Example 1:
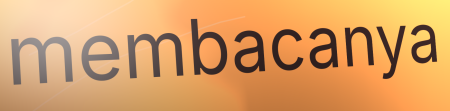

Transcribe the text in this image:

membacanya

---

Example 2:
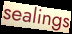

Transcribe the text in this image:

sealings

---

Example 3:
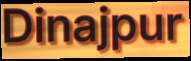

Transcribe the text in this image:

Dinajpur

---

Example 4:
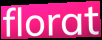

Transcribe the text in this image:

florat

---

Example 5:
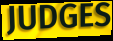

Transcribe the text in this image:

JUDGES